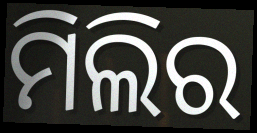
ମିଲିର